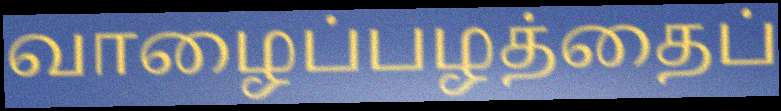
வாழைப்பழத்தைப்